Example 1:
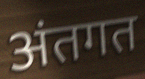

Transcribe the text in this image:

अंतगत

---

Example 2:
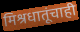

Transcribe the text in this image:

मिश्रधातूंचाही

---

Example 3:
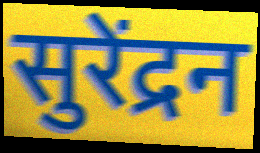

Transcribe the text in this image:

सुरेंद्रन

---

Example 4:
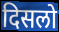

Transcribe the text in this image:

दिसलो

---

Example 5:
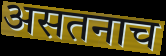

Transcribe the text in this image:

असतनाच